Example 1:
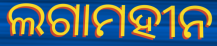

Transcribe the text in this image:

ଲଗାମହୀନ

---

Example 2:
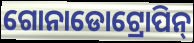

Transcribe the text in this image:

ଗୋନାଡୋଟ୍ରୋପିନ୍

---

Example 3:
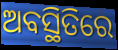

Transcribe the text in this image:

ଅବସ୍ଥିତିରେ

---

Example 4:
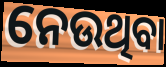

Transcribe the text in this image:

ନେଉଥିବା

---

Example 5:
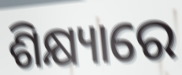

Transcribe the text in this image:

ଶିକ୍ଷ୍ୟାରେ